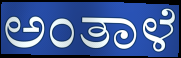
ಅಂತಾಳೆ